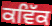
ਕਵਿੱਕ